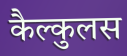
कैल्कुलस